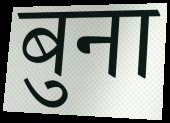
बुना